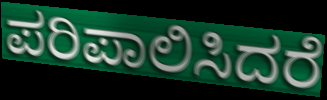
ಪರಿಪಾಲಿಸಿದರೆ